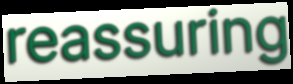
reassuring